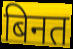
बिनत